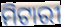
ମିଟାରୀ